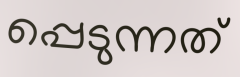
പ്പെടുന്നത്